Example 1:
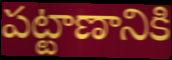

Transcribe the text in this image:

పట్టాణానికి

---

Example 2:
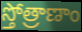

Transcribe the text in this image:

స్తోత్రాణాం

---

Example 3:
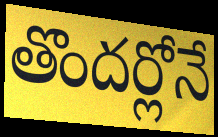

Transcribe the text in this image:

తొందర్లోనే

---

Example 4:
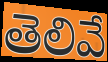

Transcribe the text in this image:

తెలివే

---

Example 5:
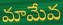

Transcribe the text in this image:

మామేవ